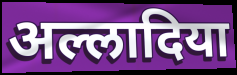
अल्लादिया